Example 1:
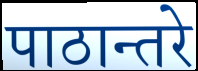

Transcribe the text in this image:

पाठान्तरे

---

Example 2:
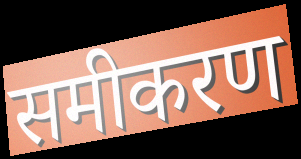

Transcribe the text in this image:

समीकरण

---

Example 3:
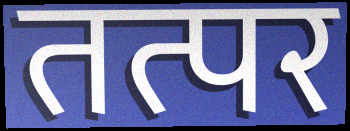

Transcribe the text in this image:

तत्‍पर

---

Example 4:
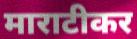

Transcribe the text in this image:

माराटीकर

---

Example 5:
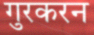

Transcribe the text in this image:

गुरकरन